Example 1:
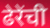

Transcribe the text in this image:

ढेरेंची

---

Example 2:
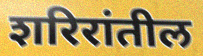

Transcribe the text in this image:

शरिरांतील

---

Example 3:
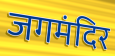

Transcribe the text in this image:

जगमंदिर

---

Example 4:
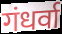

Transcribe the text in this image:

गंधर्वा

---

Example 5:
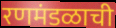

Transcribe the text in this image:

रणमंडळाची